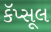
કૅપ્સૂલ